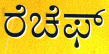
ರೆಚೆಫ್